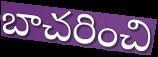
బాచరించి